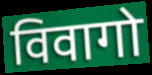
विवागो